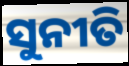
ସୁନୀତି